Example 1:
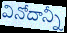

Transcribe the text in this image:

వినోదాన్నీ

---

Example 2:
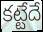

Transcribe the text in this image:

కట్టేదే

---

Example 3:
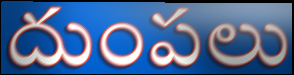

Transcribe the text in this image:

దుంపలు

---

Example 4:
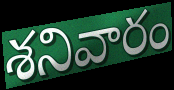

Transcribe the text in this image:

శనివారం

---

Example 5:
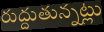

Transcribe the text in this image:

రుద్దుతున్నట్లు